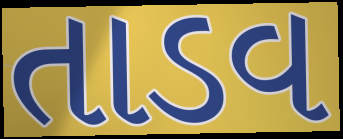
તાડવ